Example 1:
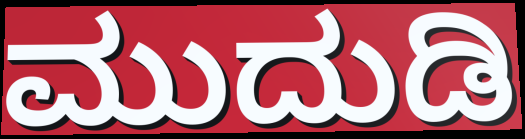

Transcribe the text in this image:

ಮುದುಡಿ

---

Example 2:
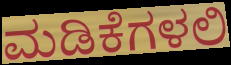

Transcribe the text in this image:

ಮಡಿಕೆಗಳಲಿ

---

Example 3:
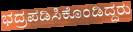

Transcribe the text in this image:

ಭದ್ರಪಡಿಸಿಕೊಂಡಿದ್ದರು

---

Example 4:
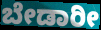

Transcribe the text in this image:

ಬೇಡಾರೀ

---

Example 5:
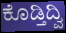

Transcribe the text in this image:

ಕೊಡ್ತಿದ್ವಿ